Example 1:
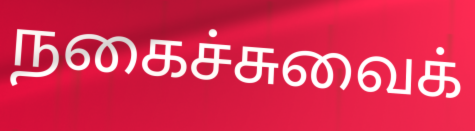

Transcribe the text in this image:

நகைச்சுவைக்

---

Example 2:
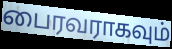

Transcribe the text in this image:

பைரவராகவும்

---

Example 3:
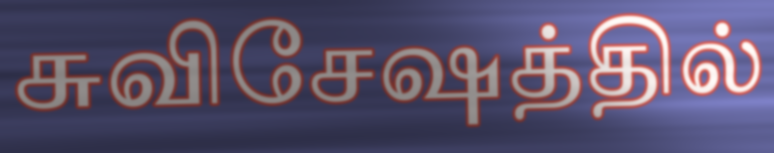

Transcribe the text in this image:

சுவிசேஷத்தில்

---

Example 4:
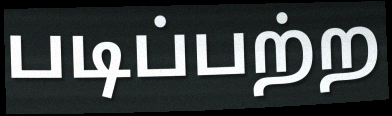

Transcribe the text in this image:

படிப்பற்ற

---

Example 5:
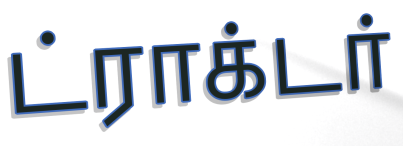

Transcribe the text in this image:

ட்ராக்டர்